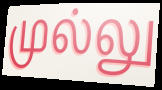
முல்லு